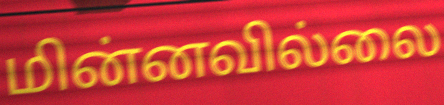
மின்னவில்லை